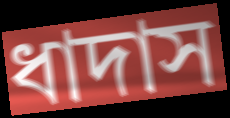
ধাদাস